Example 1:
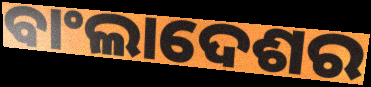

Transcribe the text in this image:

ବାଂଲାଦେଶର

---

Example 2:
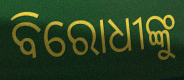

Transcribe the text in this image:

ବିରୋଧୀଙ୍କୁ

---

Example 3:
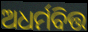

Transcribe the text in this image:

ଅଧର୍ମବିତ୍ତ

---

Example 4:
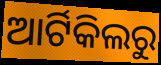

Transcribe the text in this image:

ଆର୍ଟିକିଲରୁ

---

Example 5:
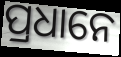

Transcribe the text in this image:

ପ୍ରଧାନେ